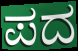
ಪದ